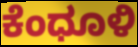
ಕೆಂಧೂಳಿ